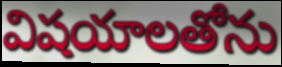
విషయాలతోను